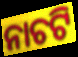
ନାଚଟି